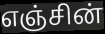
எஞ்சின்